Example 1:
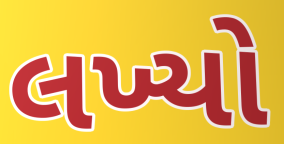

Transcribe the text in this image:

લખ્યો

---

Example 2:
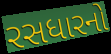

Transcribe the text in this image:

રસધારનો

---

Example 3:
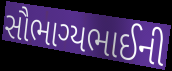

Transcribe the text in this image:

સૌભાગ્યભાઈની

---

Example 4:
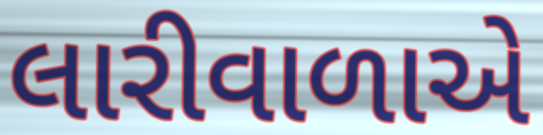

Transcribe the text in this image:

લારીવાળાએ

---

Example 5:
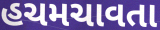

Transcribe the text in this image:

હચમચાવતા